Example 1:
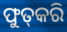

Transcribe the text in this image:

ଫୁତ୍‌କରି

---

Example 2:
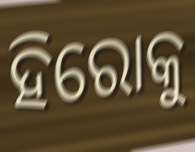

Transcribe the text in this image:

ହିରୋକୁ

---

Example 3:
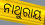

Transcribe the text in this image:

ନାଥୁରାୟ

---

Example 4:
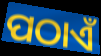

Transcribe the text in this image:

ପଠାଏଁ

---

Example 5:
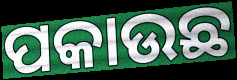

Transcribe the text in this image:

ପକାଉଛ